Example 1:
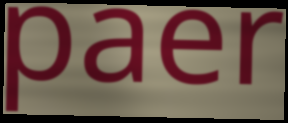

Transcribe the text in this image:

paer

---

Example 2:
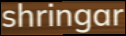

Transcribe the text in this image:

shringar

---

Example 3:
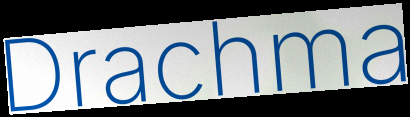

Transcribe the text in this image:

Drachma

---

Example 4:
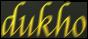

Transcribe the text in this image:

dukho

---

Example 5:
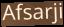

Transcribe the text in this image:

Afsarji